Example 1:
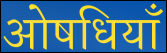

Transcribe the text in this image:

ओषधियाँ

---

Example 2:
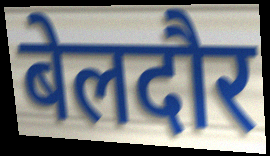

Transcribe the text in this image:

बेलदौर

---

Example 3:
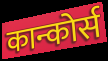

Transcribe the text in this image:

कान्कोर्स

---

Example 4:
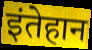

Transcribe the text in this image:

इंतेहान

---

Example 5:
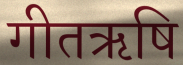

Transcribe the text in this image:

गीतऋषि